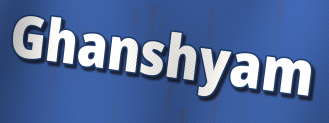
Ghanshyam